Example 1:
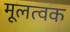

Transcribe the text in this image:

मूलत्वक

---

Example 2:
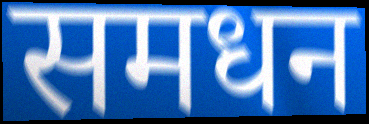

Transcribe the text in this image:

समधन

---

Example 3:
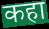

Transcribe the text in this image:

कहा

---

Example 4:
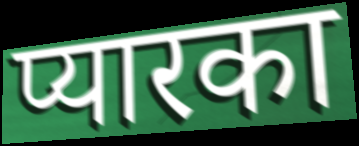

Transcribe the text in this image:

प्यारका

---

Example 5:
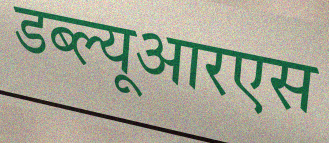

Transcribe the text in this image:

डब्ल्यूआरएस